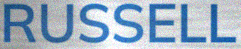
RUSSELL